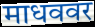
माधववर